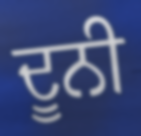
ਦੂਨੀ